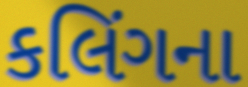
કલિંગના